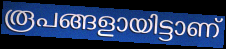
രൂപങ്ങളായിട്ടാണ്